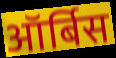
ऑर्बिस